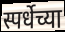
स्पर्धेच्या